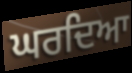
ਘਰਦਿਆ